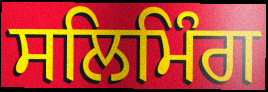
ਸਲਿਮਿੰਗ